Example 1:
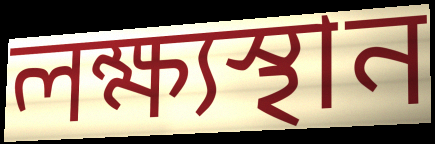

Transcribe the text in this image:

লক্ষ্যস্থান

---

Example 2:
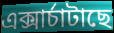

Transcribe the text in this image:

এক্সাৰ্চাটাছে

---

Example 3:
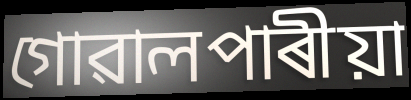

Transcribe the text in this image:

গোৱালপাৰীয়া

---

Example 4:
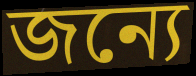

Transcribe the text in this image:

জন্যে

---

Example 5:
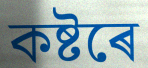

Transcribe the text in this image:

কষ্টৰে